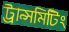
ট্রান্সমিটিং